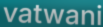
vatwani